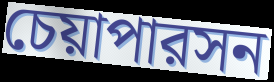
চেয়াপারসন